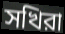
সখিরা